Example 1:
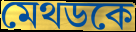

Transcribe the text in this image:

মেথডকে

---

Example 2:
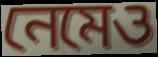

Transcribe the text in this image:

নেমেও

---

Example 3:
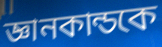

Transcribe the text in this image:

জ্ঞানকান্ডকে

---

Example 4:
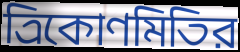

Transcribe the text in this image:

ত্রিকোণমিতির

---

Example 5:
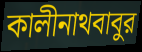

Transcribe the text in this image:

কালীনাথবাবুর